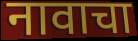
नावाचा